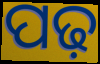
ପଢ଼